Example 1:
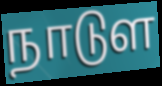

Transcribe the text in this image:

நாடுள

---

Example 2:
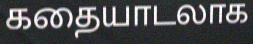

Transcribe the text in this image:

கதையாடலாக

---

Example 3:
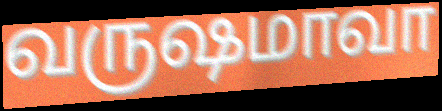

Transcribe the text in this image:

வருஷமாவா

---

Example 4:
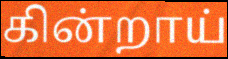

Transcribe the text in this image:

கின்றாய்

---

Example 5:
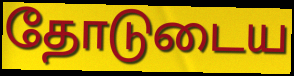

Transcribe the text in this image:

தோடுடைய